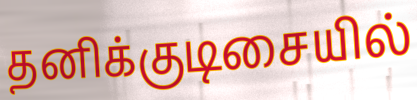
தனிக்குடிசையில்